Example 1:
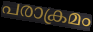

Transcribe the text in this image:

പരാക്രമം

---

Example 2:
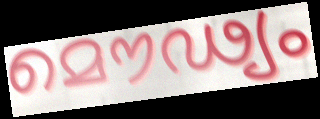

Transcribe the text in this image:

മൌഢ്യം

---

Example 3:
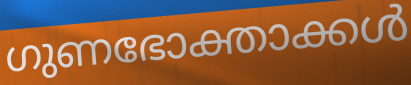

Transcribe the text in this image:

ഗുണഭോക്താക്കൾ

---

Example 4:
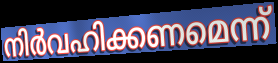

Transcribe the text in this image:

നിർവഹിക്കണമെന്ന്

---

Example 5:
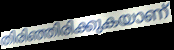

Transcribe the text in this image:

തിരിഞ്ഞിരിക്കുകയാണ്